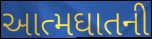
આત્મઘાતની